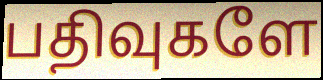
பதிவுகளே